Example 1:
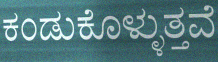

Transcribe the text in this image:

ಕಂಡುಕೊಳ್ಳುತ್ತವೆ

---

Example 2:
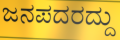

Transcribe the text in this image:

ಜನಪದರದ್ದು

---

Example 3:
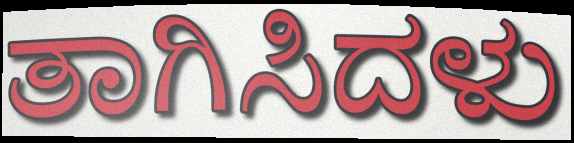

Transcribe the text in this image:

ತಾಗಿಸಿದಳು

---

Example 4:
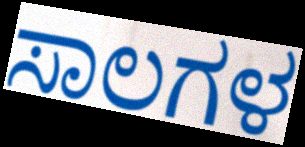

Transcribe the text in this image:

ಸಾಲಗಳ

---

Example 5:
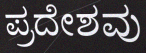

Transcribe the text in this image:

ಪ್ರದೇಶವು